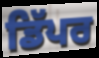
ਡਿੱਪਰ